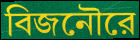
বিজনৌরে